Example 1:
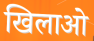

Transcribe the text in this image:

खिलाओ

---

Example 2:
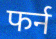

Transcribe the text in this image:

फर्न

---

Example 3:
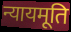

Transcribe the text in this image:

न्यायमूति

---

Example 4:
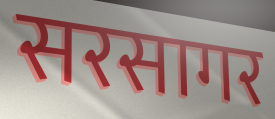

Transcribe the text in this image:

सरसागर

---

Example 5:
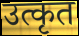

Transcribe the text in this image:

उत्कृत